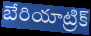
బేరియాట్రిక్